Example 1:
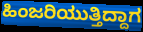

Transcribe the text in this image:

ಹಿಂಜರಿಯುತ್ತಿದ್ದಾಗ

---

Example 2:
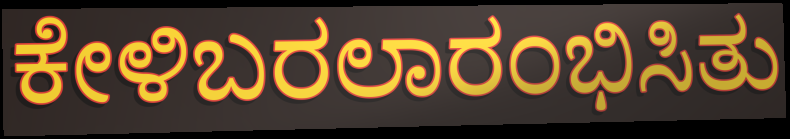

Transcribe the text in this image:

ಕೇಳಿಬರಲಾರಂಭಿಸಿತು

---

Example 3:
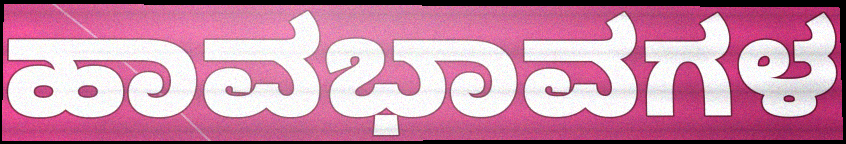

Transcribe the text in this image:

ಹಾವಭಾವಗಳ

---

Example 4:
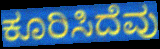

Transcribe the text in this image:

ಕೂರಿಸಿದೆವು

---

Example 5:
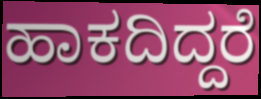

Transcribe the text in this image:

ಹಾಕದಿದ್ದರೆ